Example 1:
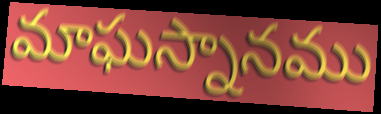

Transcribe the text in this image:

మాఘస్నానము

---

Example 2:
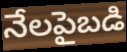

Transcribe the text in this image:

నేలపైబడి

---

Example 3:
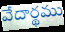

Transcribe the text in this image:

వేదార్థము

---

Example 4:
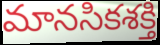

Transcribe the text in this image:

మానసికశక్తి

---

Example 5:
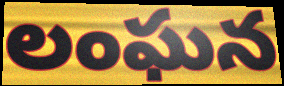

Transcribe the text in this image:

లంఘన